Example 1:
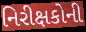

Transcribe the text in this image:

નિરીક્ષકોની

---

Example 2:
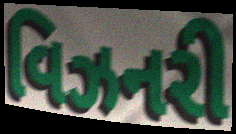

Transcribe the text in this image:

વિઝનરી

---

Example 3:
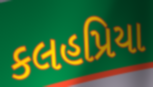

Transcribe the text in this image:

કલહપ્રિયા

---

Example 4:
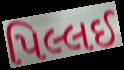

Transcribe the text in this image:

પિલ્લઈ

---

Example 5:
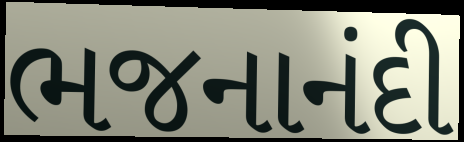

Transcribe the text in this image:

ભજનાનંદી